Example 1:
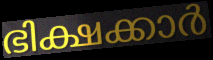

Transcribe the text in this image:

ഭിക്ഷക്കാർ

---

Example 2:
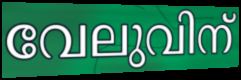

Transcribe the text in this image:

വേലുവിന്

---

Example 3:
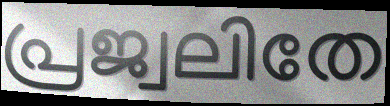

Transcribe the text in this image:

പ്രജ്വലിതേ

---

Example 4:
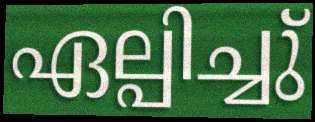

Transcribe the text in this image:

ഏല്പിച്ചു്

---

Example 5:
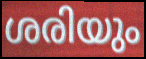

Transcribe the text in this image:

ശരിയും